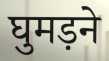
घुमड़ने